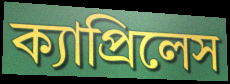
ক্যাপ্রিলেস